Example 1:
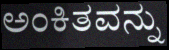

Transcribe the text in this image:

ಅಂಕಿತವನ್ನು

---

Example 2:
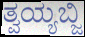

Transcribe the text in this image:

ತ್ವಯ್ಯಬ್ಜಿ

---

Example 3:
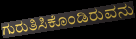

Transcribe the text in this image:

ಗುರುತಿಸಿಕೊಂಡಿರುವನು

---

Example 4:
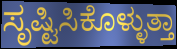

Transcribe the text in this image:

ಸೃಷ್ಟಿಸಿಕೊಳ್ಳುತ್ತಾ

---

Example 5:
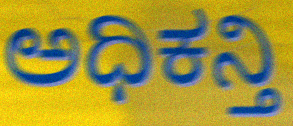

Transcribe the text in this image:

ಅಧಿಕನ್ತಿ